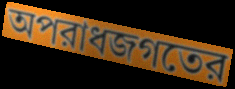
অপরাধজগতের